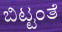
ಬಿಟ್ಟಂತೆ